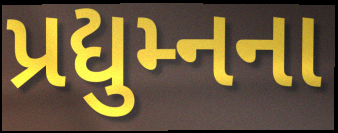
પ્રદ્યુમ્નના